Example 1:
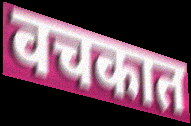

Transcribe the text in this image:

वचकात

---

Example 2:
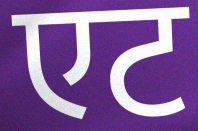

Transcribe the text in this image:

एट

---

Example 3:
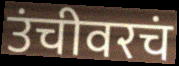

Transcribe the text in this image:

उंचीवरचं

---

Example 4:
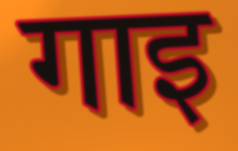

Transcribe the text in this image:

गाइ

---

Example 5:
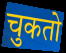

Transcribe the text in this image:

चुकतो